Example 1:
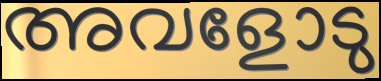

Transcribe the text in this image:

അവളോടു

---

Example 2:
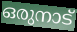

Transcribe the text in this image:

ഒരുനാട്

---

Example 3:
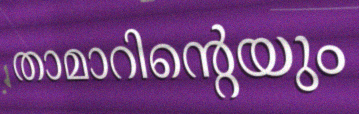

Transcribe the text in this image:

താമാറിന്റെയും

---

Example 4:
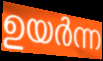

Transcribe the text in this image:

ഉയർന്ന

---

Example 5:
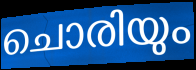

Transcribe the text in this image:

ചൊരിയും